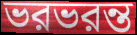
ভরভরন্ত